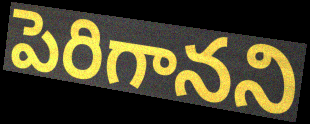
పెరిగానని